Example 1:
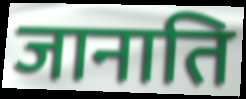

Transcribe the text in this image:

जानाति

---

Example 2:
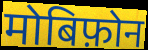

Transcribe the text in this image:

मोबिफ़ोन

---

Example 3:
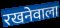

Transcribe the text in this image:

रखनेवाला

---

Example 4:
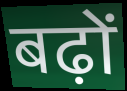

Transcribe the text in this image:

बढ़ों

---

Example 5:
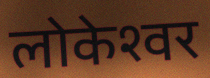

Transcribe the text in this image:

लोकेश्वर